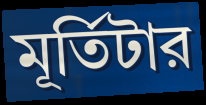
মূর্তিটার